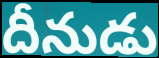
దీనుడు